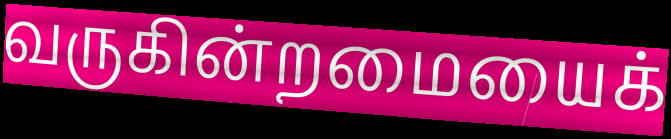
வருகின்றமையைக்